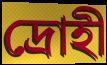
দ্ৰোহী